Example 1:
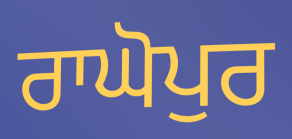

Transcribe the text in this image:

ਰਾਘੋਪੁਰ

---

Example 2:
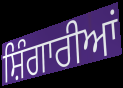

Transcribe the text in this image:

ਸ਼ਿੰਗਾਰੀਆਂ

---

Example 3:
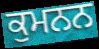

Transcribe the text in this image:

ਕੁਮਨਨ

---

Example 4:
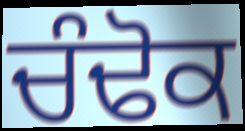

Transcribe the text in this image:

ਚੰਢੋਕ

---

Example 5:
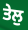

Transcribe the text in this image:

ਤੇਲੁ